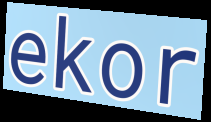
ekor